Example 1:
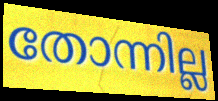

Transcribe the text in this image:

തോന്നില്ല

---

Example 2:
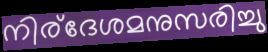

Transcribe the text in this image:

നിര്ദേശമനുസരിച്ചു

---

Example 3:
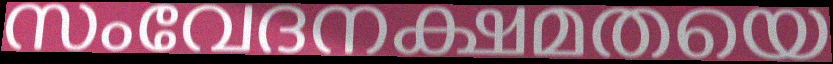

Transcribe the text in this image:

സംവേദനക്ഷമതയെ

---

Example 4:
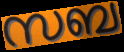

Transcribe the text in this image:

സബ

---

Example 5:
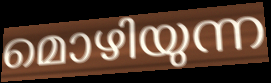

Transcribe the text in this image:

മൊഴിയുന്ന